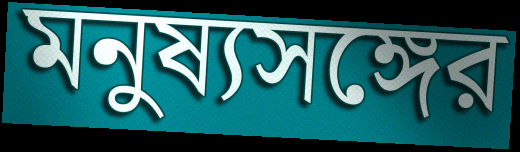
মনুষ্যসঙ্গের